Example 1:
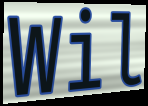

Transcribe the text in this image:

Wil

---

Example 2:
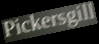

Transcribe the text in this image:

Pickersgill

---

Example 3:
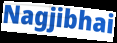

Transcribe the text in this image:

Nagjibhai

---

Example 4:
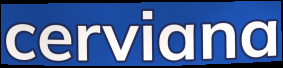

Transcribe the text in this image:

cerviana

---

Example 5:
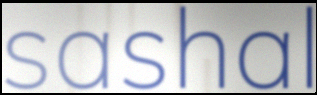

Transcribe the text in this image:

sashal